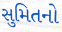
સુમિતનો